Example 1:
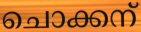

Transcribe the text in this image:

ചൊക്കന്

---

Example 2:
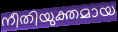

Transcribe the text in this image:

നീതിയുക്തമായ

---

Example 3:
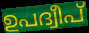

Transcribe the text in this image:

ഉപദ്വീപ്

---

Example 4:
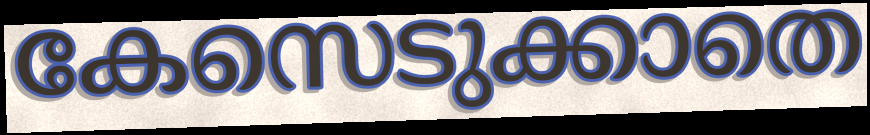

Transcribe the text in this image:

കേസെടുക്കാതെ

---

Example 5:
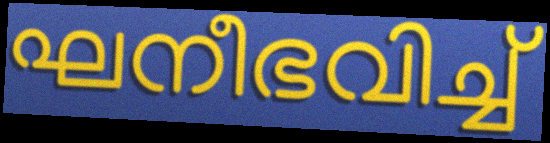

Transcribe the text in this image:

ഘനീഭവിച്ച്